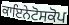
ਕਾਇਨੇਟੋਸਕੋਪ